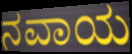
ನವಾಯ